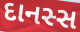
દાનસ્સ